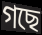
গছে